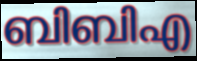
ബിബിഎ